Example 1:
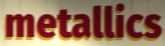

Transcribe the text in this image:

metallics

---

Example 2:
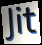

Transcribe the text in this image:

Jit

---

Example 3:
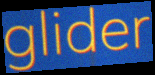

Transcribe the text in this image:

glider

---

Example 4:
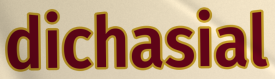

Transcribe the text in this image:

dichasial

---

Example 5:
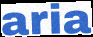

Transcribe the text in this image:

aria